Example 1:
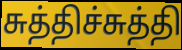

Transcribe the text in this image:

சுத்திச்சுத்தி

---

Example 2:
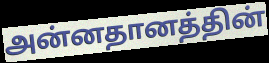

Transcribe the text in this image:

அன்னதானத்தின்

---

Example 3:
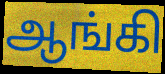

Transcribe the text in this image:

ஆங்கி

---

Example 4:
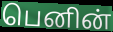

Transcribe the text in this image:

பெனின்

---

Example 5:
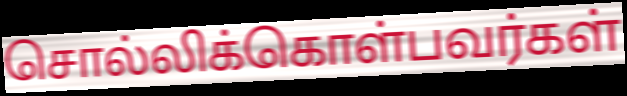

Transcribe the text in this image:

சொல்லிக்கொள்பவர்கள்